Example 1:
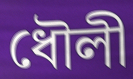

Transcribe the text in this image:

ধৌলী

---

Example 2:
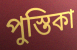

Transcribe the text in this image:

পুস্তিকা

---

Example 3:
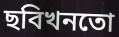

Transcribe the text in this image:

ছবিখনতো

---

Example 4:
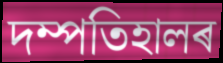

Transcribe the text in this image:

দম্পতিহালৰ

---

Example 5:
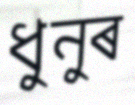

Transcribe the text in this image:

ধুনুৰ